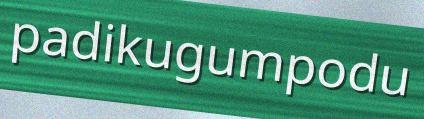
padikugumpodu